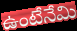
ఉంటేనేమి